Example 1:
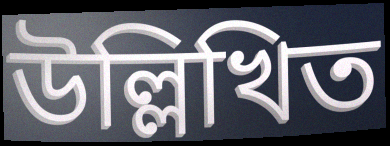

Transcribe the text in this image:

উল্লিখিত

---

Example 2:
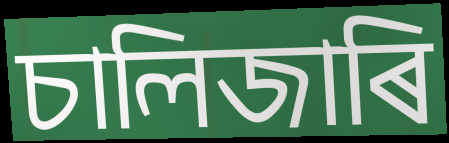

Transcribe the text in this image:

চালিজাৰি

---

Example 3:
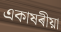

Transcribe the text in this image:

একাষৰীয়া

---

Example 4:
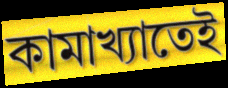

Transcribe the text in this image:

কামাখ্যাতেই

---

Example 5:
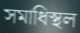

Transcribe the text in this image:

সমাধিস্থল